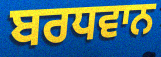
ਬਰਧਵਾਨ